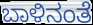
ಬಾಳಿನಂತೆ